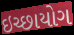
ઇચ્છાયોગ